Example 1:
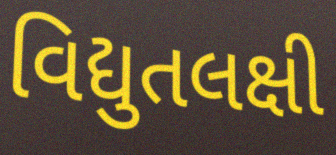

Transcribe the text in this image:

વિદ્યુતલક્ષી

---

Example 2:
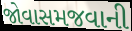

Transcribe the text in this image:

જોવાસમજવાની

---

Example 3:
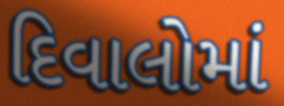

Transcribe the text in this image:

દિવાલોમાં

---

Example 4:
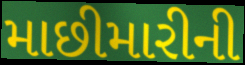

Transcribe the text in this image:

માછીમારીની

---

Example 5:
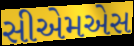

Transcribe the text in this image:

સીએમએસ